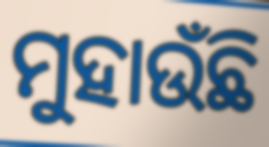
ମୁହାଉଁଛି